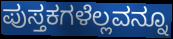
ಪುಸ್ತಕಗಳೆಲ್ಲವನ್ನೂ